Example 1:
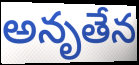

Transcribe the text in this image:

అనృతేన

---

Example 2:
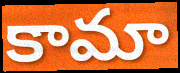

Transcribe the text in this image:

కామా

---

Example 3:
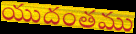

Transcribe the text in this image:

యుదంతము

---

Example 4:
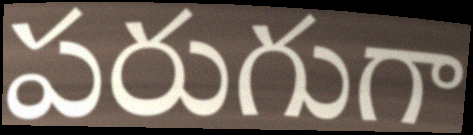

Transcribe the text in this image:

పరుగుగా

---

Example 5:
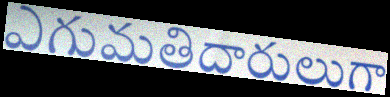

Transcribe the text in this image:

ఎగుమతిదారులుగా